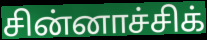
சின்னாச்சிக்